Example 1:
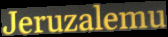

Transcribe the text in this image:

Jeruzalemu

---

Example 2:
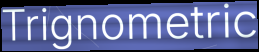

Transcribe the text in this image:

Trignometric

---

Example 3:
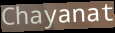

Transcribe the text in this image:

Chayanat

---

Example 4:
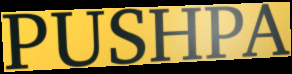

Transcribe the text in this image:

PUSHPA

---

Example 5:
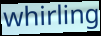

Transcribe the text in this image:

whirling